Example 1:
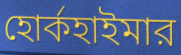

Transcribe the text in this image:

হোর্কহাইমার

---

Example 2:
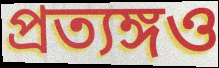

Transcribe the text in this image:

প্রত্যঙ্গও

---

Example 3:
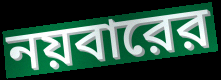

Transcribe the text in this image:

নয়বারের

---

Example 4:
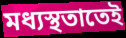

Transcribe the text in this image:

মধ্যস্থতাতেই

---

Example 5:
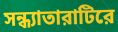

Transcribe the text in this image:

সন্ধ্যাতারাটিরে